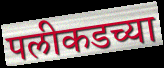
पलीकडच्या